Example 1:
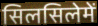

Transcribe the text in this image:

सिलसिलेमें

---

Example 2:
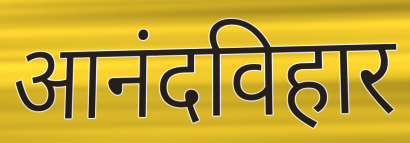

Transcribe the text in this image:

आनंदविहार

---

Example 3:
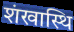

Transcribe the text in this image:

शंखास्थि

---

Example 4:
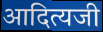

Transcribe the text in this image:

आदित्यजी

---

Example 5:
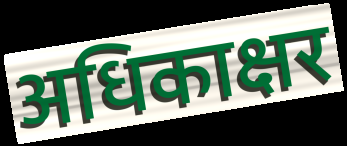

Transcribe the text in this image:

अधिकाक्षर